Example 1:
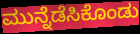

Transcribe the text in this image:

ಮುನ್ನೆಡೆಸಿಕೊಂಡು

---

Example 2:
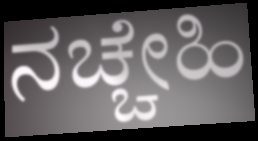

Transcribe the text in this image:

ನಚ್ಚೇಹಿ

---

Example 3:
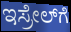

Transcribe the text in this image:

ಇಸ್ರೇಲ್‍ಗೆ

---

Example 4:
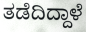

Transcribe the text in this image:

ತಡೆದಿದ್ದಾಳೆ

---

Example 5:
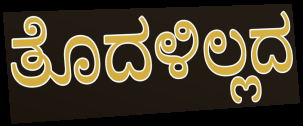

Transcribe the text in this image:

ತೊದಳಿಲ್ಲದ